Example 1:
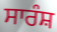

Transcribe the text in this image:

ਸਾਰੰਸ਼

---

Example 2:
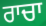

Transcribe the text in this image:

ਰਾਚਾ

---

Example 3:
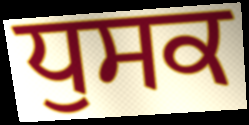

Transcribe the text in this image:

ਧੁਸਕ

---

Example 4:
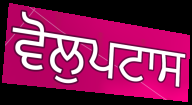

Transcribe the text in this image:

ਵੋਲੁਪਟਾਸ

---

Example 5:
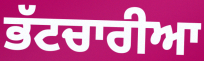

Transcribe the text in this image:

ਭੱਟਚਾਰੀਆ